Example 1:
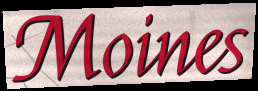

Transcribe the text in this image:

Moines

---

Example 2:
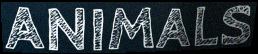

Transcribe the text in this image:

ANIMALS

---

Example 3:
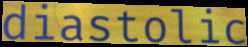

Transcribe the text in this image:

diastolic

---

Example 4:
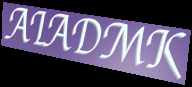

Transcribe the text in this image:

AIADMK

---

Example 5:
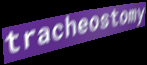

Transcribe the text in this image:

tracheostomy